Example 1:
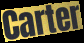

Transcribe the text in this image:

Carter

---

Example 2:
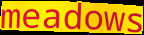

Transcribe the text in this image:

meadows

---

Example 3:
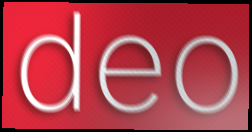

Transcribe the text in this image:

deo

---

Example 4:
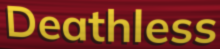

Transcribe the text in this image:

Deathless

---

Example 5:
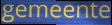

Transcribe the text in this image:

gemeente